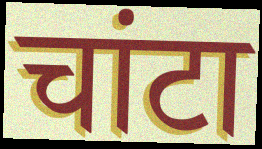
चांटा